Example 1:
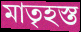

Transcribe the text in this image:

মাতৃহস্ত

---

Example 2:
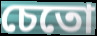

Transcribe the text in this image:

চেতো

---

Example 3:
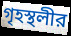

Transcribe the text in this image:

গৃহস্থলীর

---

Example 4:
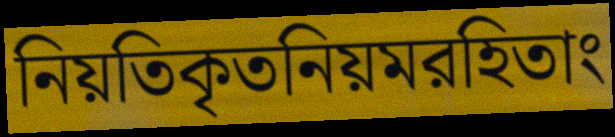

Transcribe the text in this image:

নিয়তিকৃতনিয়মরহিতাং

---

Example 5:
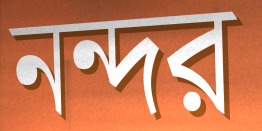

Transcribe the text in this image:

নন্দর